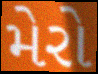
મેરો